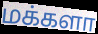
மக்களா